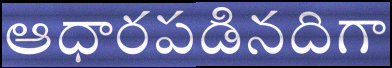
ఆధారపడినదిగా